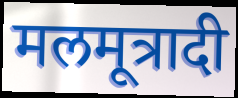
मलमूत्रादी